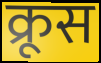
क्रूस